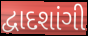
દ્વાદશાંગી